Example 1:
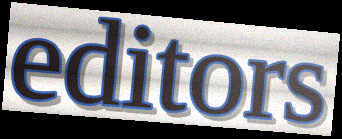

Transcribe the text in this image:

editors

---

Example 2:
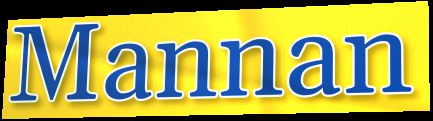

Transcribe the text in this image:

Mannan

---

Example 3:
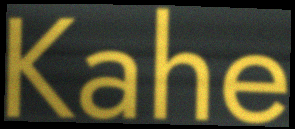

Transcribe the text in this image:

Kahe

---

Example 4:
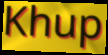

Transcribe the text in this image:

Khup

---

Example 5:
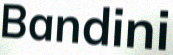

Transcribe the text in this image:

Bandini